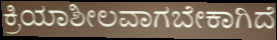
ಕ್ರಿಯಾಶೀಲವಾಗಬೇಕಾಗಿದೆ